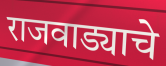
राजवाड्याचे